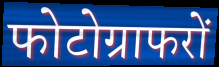
फोटोग्राफरों